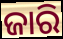
ଜାରି